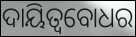
ଦାୟିତ୍ବବୋଧର